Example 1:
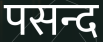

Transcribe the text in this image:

पसन्द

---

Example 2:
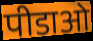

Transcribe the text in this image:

पीडाओ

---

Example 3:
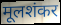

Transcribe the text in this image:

मूलशंकर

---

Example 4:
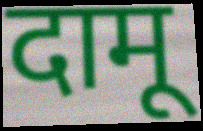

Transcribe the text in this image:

दामू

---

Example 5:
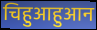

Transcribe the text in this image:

चिहुआहुआन